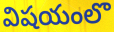
విషయంలొ